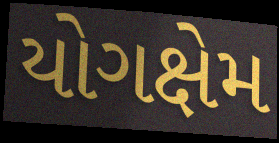
યોગક્ષેમ